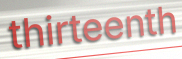
thirteenth